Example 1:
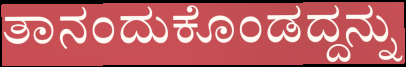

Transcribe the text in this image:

ತಾನಂದುಕೊಂಡದ್ದನ್ನು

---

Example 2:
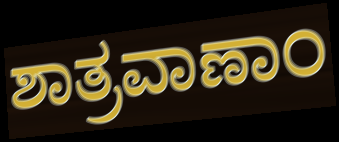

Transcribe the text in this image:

ಶಾತ್ರವಾಣಾಂ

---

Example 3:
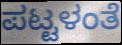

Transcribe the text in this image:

ಪಟ್ಟಳಂತೆ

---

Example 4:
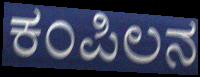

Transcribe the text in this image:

ಕಂಪಿಲನ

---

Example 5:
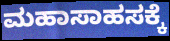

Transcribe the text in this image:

ಮಹಾಸಾಹಸಕ್ಕೆ